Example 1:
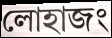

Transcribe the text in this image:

লোহাজং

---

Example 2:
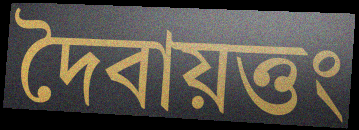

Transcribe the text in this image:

দৈবায়ত্তং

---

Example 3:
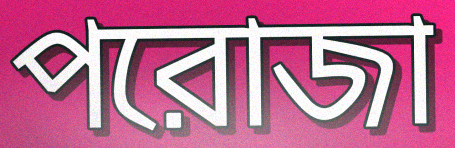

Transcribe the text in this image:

পরোজা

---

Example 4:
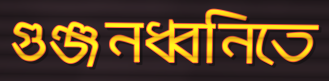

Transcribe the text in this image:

গুঞ্জনধ্বনিতে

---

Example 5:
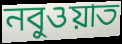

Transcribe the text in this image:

নবুওয়াত